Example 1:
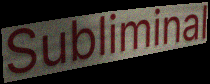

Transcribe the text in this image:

Subliminal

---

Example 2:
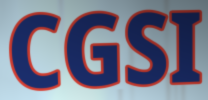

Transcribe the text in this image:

CGSI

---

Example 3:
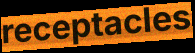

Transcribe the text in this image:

receptacles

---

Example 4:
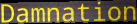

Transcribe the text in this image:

Damnation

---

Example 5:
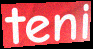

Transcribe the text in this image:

teni